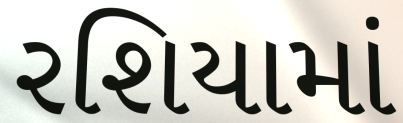
રશિયામાં